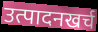
उत्पादनखर्च